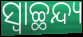
ସ୍ୱାଚ୍ଛନ୍ଦ୍ୟ